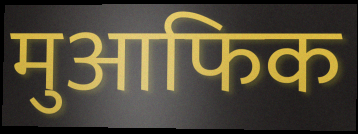
मुआफिक